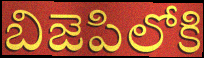
బిజెపిలోకి